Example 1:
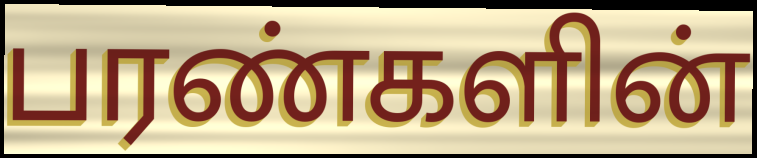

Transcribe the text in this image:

பரண்களின்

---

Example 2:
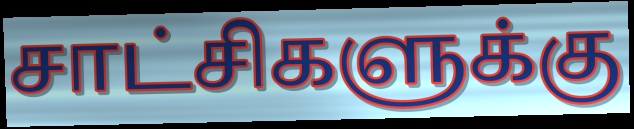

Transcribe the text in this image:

சாட்சிகளுக்கு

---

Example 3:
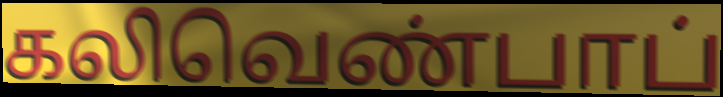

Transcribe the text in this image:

கலிவெண்பாப்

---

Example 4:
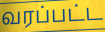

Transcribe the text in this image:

வரப்பட்ட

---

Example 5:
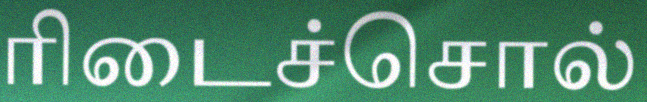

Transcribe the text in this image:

ரிடைச்சொல்